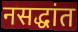
नसद्धांत